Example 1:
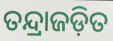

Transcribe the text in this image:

ତନ୍ଦ୍ରାଜଡ଼ିତ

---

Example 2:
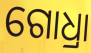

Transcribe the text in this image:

ଗୋଧ୍ରା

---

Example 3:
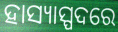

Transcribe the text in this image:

ହାସ୍ୟାସ୍ପଦରେ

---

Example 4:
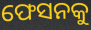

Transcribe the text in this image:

ଫେସନକୁ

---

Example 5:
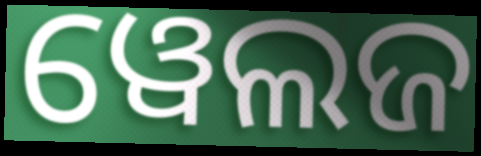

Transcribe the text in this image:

ୱେଲଜ